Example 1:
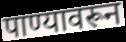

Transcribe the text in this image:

पाण्यावरून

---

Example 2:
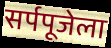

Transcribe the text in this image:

सर्पपूजेला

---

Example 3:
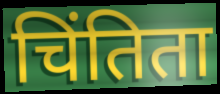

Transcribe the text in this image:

चिंतिता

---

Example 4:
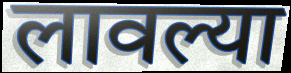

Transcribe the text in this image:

लावल्या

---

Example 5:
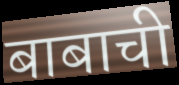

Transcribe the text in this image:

बाबाची